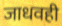
जाधवही